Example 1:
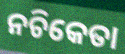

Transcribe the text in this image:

ନଚିକେତା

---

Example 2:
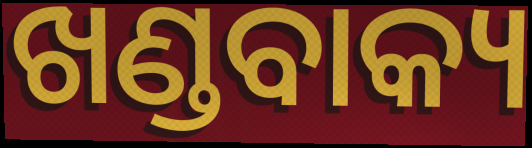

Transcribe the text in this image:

ଖଣ୍ଡବାକ୍ୟ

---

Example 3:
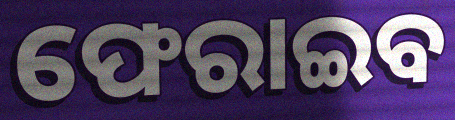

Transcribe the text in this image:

ଫେରାଇବ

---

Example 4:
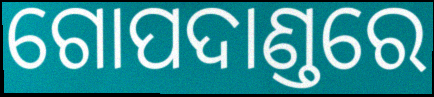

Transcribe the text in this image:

ଗୋପଦାଣ୍ଡରେ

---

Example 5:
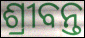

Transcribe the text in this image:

ଶ୍ରୀବନ୍ତ